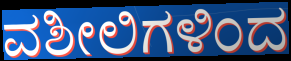
ವಶೀಲಿಗಳಿಂದ